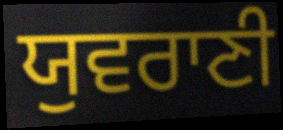
ਯੁਵਰਾਣੀ